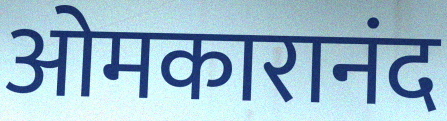
ओमकारानंद